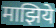
माझिये